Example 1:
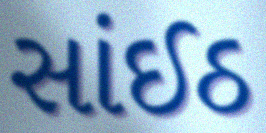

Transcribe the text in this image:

સાંઈઠ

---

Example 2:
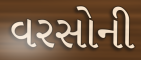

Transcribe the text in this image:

વરસોની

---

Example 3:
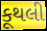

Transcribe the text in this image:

કૂથલી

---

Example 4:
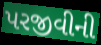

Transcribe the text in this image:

પરજીવીની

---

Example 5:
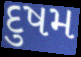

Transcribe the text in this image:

દુષમ